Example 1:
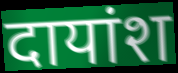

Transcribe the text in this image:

दायांश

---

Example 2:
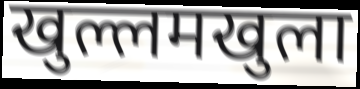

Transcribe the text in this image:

खुल्लमखुला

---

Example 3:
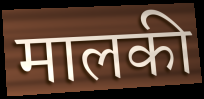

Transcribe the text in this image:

मालकी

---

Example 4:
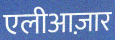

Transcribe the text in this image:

एलीआज़ार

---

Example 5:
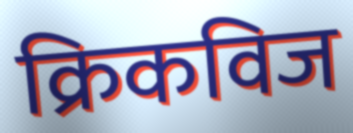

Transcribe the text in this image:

क्रिकविज